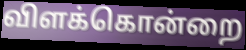
விளக்கொன்றை